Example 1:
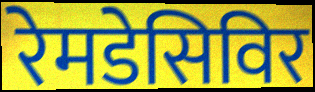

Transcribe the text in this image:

रेमडेसिविर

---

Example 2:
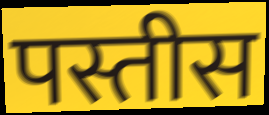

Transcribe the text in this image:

पस्तीस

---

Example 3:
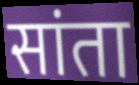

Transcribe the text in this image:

सांता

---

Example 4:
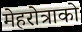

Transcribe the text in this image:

मेहरोत्राको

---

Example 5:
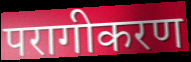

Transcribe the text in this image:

परागीकरण